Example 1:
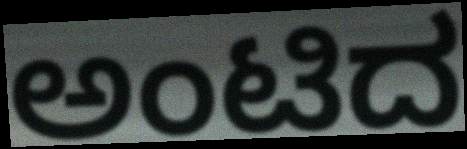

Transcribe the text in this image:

ಅಂಟಿದ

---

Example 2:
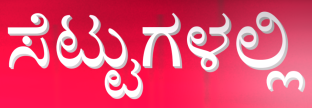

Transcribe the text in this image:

ಸೆಟ್ಟುಗಳಲ್ಲಿ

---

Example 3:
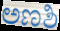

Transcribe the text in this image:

ಅಣಶಿ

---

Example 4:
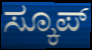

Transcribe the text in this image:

ಸ್ಕೂಪ್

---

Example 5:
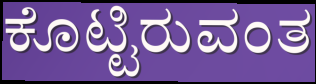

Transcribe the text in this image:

ಕೊಟ್ಟಿರುವಂತ